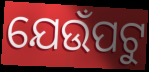
ଯେଉଁପଟୁ